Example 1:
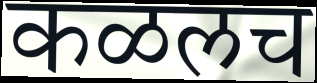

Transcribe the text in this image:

कळलच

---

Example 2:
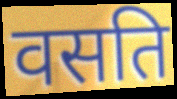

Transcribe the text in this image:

वसति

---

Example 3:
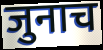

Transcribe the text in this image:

जुनाच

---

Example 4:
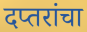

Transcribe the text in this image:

दप्तरांचा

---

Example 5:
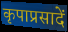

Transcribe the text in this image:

कृपाप्रसादें